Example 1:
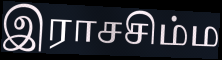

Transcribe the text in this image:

இராசசிம்ம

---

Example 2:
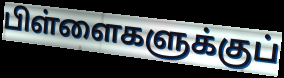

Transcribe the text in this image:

பிள்ளைகளுக்குப்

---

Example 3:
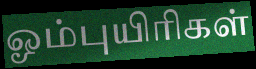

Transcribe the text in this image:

ஓம்புயிரிகள்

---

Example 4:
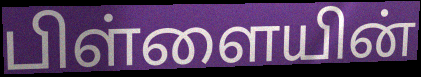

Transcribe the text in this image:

பிள்ளையின்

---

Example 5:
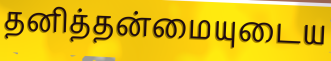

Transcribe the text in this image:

தனித்தன்மையுடைய